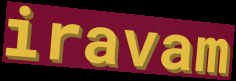
iravam